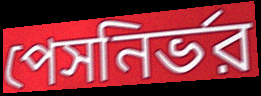
পেসনির্ভর